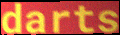
darts